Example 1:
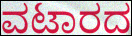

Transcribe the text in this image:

ವಟಾರದ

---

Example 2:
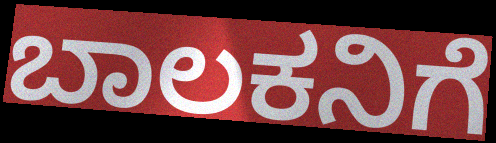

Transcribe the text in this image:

ಬಾಲಕನಿಗೆ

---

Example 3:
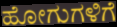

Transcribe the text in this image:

ಹೋಗುಗಳಿಗೆ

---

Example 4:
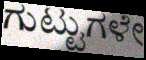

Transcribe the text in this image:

ಗುಟ್ಟುಗಳೇ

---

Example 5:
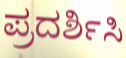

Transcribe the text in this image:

ಪ್ರದರ್ಶಿಸಿ